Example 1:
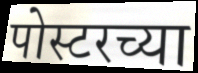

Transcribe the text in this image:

पोस्टरच्या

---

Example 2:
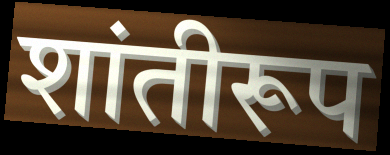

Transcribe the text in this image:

शांतीरूप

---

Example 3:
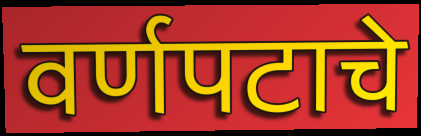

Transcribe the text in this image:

वर्णपटाचे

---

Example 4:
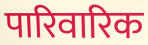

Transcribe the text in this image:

पारिवारिक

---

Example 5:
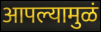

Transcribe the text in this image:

आपल्यामुळं